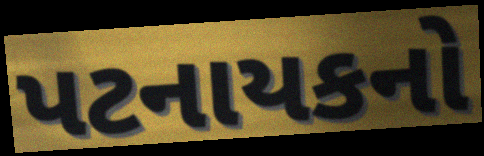
પટનાયકનો